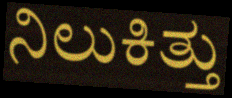
ನಿಲುಕಿತ್ತು